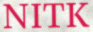
NITK